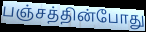
பஞ்சத்தின்போது